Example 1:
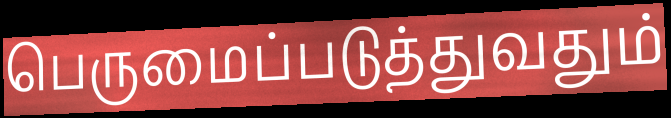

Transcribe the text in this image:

பெருமைப்படுத்துவதும்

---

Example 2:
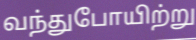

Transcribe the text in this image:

வந்துபோயிற்று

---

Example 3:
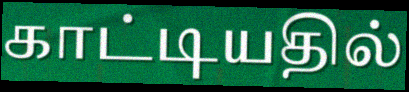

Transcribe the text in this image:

காட்டியதில்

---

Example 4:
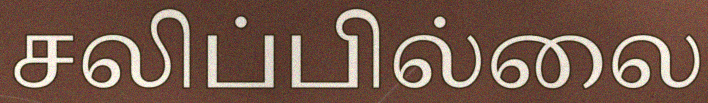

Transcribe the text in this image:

சலிப்பில்லை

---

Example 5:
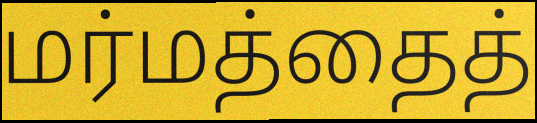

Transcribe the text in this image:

மர்மத்தைத்